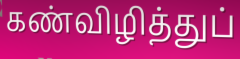
கண்விழித்துப்